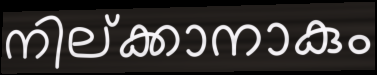
നില്ക്കാനാകും